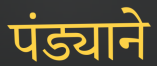
पंड्याने